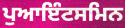
ਪੁਆਇੰਟਸਮਿਨ